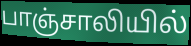
பாஞ்சாலியில்